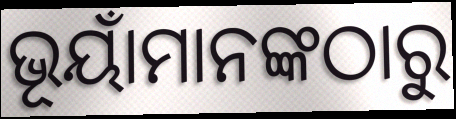
ଭୂୟାଁମାନଙ୍କଠାରୁ